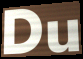
Du